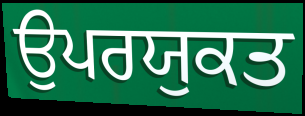
ਉਪਰਯੁਕਤ